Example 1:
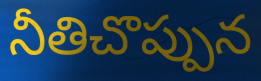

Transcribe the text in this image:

నీతిచొప్పున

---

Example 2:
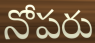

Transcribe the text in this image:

నోపరు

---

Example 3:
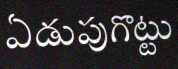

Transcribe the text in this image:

ఏడుపుగొట్టు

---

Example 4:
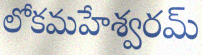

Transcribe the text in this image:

లోకమహేశ్వరమ్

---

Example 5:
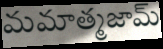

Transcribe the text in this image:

మమాత్మజామ్